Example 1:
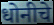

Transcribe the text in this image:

धोनीचे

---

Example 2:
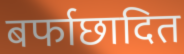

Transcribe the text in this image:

बर्फाछादित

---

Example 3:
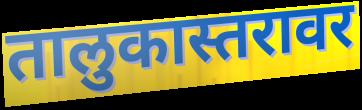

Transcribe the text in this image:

तालुकास्तरावर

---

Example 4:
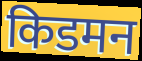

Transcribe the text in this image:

किडमन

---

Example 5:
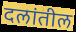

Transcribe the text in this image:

दलांतील